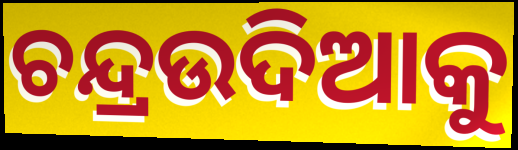
ଚନ୍ଦ୍ରଉଦିଆକୁ